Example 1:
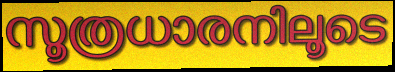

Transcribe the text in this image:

സൂത്രധാരനിലൂടെ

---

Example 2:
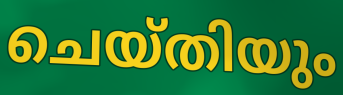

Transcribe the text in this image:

ചെയ്തിയും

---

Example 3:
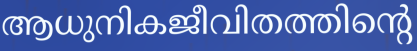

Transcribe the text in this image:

ആധുനികജീവിതത്തിന്റെ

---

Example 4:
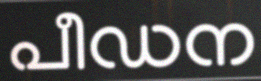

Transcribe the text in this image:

പീഡന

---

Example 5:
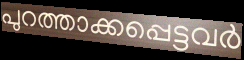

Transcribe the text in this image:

പുറത്താക്കപ്പെട്ടവർ